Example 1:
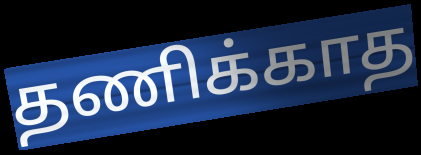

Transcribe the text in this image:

தணிக்காத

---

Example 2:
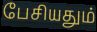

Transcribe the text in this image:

பேசியதும்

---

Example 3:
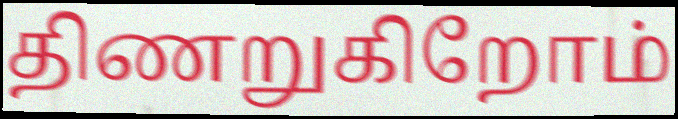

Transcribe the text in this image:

திணறுகிறோம்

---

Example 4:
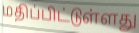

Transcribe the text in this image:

மதிப்பிட்டுள்ளது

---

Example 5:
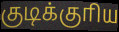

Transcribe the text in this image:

குடிக்குரிய